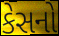
કેસનો